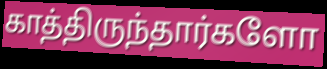
காத்திருந்தார்களோ